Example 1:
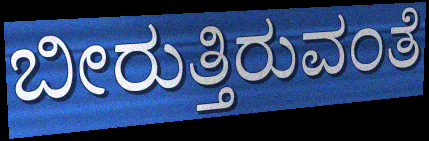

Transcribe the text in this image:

ಬೀರುತ್ತಿರುವಂತೆ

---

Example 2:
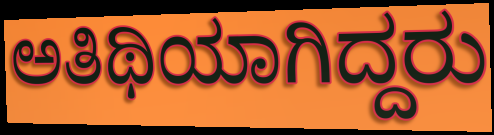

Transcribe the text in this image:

ಅತಿಥಿಯಾಗಿದ್ದರು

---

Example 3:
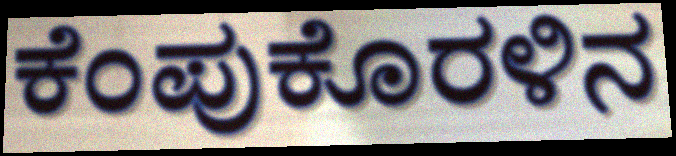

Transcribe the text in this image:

ಕೆಂಪುಕೊರಳಿನ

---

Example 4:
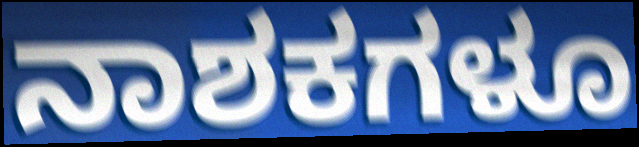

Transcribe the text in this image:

ನಾಶಕಗಳೂ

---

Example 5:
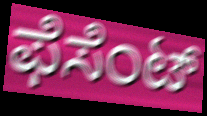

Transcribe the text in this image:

ಫೆಸೆಂಟ್